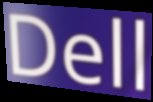
Dell